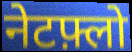
नेटफ़्लो